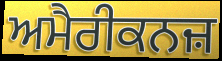
ਅਮੈਰੀਕਨਜ਼